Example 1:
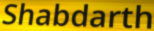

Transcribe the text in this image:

Shabdarth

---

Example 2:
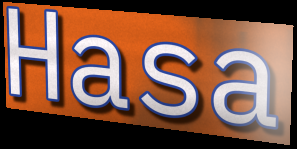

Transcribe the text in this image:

Hasa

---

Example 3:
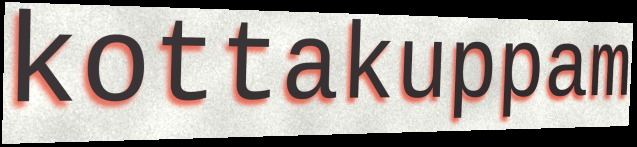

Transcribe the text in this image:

kottakuppam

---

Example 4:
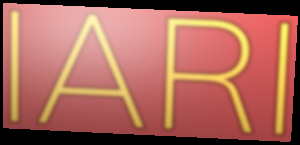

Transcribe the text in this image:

IARI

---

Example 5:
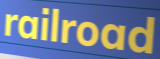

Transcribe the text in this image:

railroad